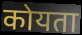
कोयता